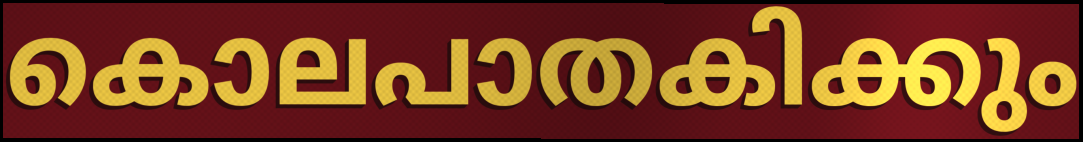
കൊലപാതകിക്കും